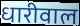
धारीवाल